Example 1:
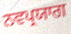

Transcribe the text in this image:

ਨਵਪ੍ਰਯਾਗ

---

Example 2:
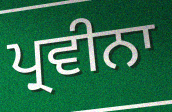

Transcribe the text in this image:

ਪ੍ਰਵੀਨਾ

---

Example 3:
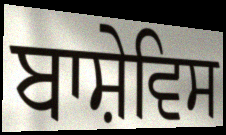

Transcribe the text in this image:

ਬਾਸ਼ੇਵਿਸ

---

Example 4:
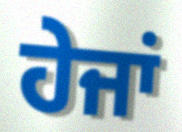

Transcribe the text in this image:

ਹੇਜਾਂ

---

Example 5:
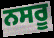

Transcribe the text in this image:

ਨਸਰੂ